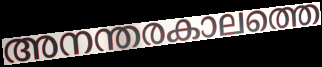
അനന്തരകാലത്തെ